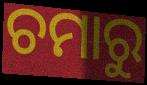
ଚମାରୁ